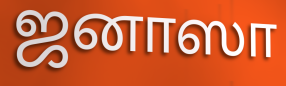
ஜனாஸா